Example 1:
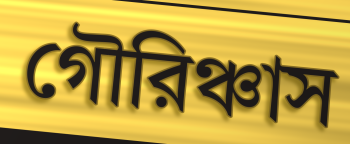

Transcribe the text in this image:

গৌরিঞ্চাস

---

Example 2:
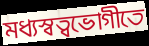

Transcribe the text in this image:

মধ্যস্বত্বভোগীতে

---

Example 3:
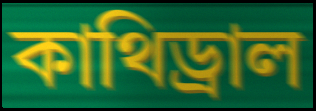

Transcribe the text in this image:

কাথিড্রাল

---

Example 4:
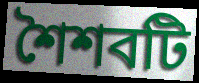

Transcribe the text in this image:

শৈশবটি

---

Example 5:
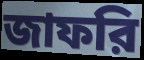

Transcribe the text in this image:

জাফরি